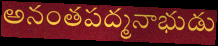
అనంతపద్మనాభుడు